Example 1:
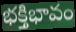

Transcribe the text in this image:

భక్తిభావం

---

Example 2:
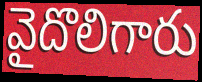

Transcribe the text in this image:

వైదొలిగారు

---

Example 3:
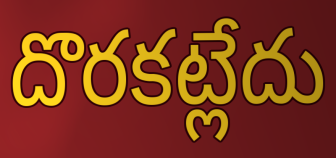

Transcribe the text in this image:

దొరకట్లేదు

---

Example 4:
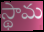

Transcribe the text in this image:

స్థామ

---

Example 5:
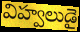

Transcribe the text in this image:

విహ్వలుడై